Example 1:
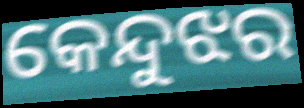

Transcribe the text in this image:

କେନ୍ଦୁଝର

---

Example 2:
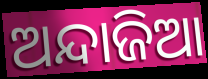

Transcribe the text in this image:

ଅନ୍ଦାଜିଆ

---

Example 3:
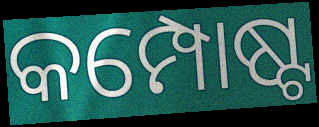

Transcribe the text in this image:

କମ୍ପୋଷ୍ଟ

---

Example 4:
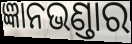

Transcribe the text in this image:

ଜ୍ଞାନଭଣ୍ଡାର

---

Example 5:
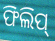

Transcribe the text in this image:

ଫିଲିପ୍